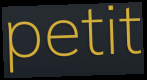
petit